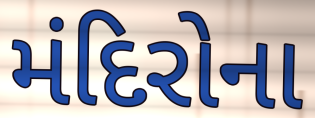
મંદિરોના